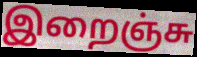
இறைஞ்சு